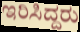
ಇರಿಸಿದ್ದರು